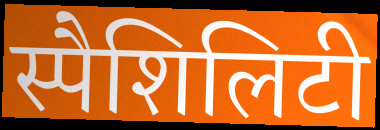
स्पैशिलिटी